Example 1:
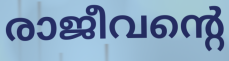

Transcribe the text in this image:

രാജീവന്റെ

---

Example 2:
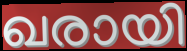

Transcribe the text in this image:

ഖരായി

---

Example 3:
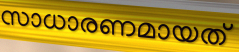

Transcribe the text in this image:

സാധാരണമായത്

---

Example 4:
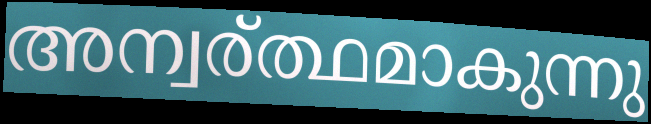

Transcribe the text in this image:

അന്വര്ത്ഥമാകുന്നു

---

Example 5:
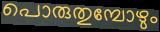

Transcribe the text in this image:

പൊരുതുമ്പോഴും